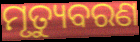
ମୃତ୍ୟୁବରଣ